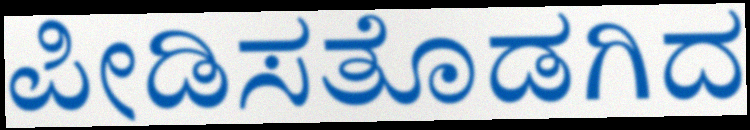
ಪೀಡಿಸತೊಡಗಿದ